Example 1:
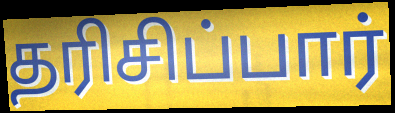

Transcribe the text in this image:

தரிசிப்பார்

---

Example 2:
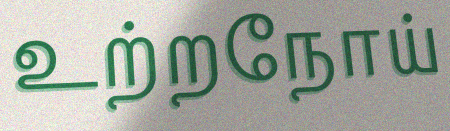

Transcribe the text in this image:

உற்றநோய்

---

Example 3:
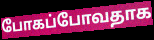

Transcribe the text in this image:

போகப்போவதாக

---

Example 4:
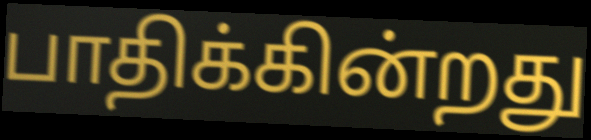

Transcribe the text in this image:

பாதிக்கின்றது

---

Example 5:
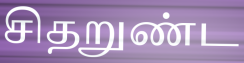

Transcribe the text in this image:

சிதறுண்ட